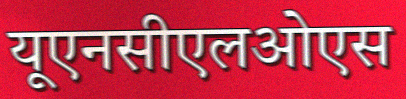
यूएनसीएलओएस